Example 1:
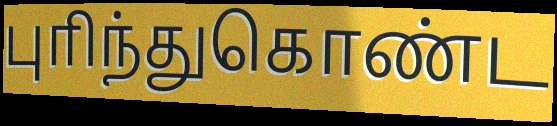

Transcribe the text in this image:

புரிந்துகொண்ட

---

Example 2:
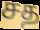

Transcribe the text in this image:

சத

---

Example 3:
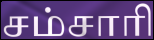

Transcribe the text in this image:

சம்சாரி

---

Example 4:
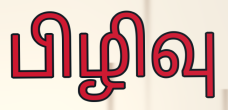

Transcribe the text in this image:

பிழிவு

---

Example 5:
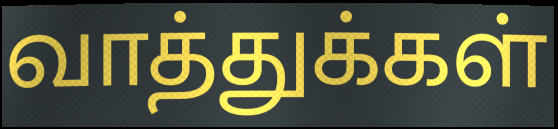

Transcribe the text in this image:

வாத்துக்கள்